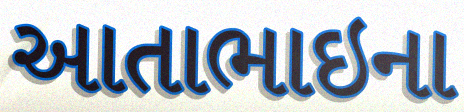
આતાભાઇના